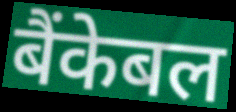
बैंकेबल